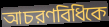
আচরণবিধিকে